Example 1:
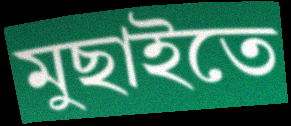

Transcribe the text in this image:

মুছাইতে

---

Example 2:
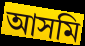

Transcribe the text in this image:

আসমি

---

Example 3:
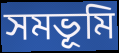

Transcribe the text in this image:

সমভূমি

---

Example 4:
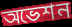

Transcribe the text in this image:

অভেশন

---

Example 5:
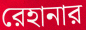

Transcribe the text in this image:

রেহানার